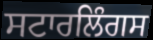
ਸਟਾਰਲਿੰਗਸ